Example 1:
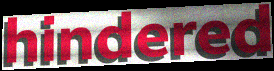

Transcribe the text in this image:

hindered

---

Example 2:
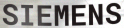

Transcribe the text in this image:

SIEMENS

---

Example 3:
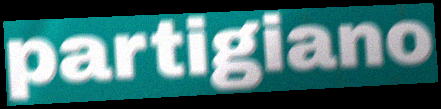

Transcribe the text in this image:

partigiano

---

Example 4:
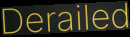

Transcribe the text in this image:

Derailed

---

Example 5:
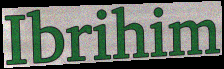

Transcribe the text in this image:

Ibrihim